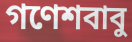
গণেশবাবু